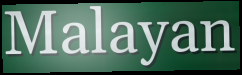
Malayan